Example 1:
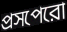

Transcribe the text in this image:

প্রসপেরো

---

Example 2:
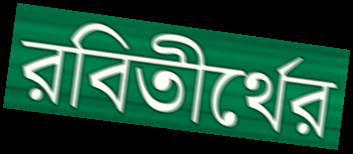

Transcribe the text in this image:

রবিতীর্থের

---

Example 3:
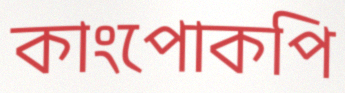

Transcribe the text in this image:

কাংপোকপি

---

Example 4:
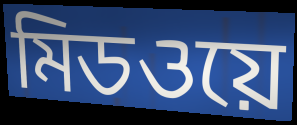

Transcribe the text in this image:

মিডওয়ে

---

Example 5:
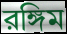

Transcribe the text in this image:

রঙ্গিম